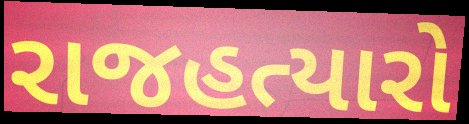
રાજહત્યારો